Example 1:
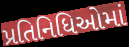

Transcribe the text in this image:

પ્રતિનિધિઓમાં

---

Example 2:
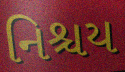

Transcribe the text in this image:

નિશ્ચય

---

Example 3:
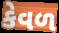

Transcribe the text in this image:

કેવળ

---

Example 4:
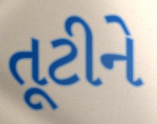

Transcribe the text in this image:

તૂટીને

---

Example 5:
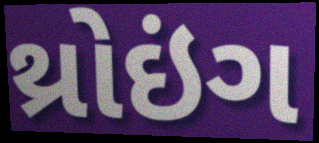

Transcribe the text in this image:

થ્રોઇંગ